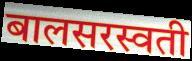
बालसरस्वती